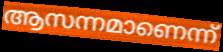
ആസന്നമാണെന്ന്